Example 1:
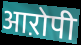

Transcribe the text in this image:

आऱोपी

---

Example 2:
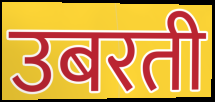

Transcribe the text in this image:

उबरती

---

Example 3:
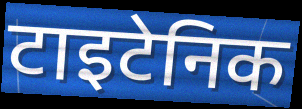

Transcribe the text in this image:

टाइटेनिक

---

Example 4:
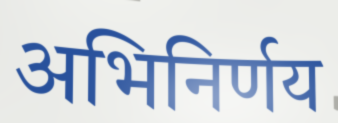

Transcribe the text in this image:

अभिनिर्णय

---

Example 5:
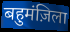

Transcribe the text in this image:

बहुमंज़िला